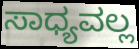
ಸಾಧ್ಯವಲ್ಲ